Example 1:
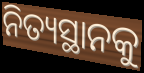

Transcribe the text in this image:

ନିତ୍ୟସ୍ଥାନକୁ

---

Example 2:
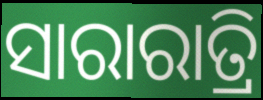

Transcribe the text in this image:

ସାରାରାତ୍ରି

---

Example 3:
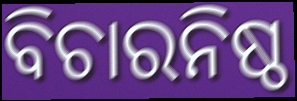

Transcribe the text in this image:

ବିଚାରନିଷ୍ଠ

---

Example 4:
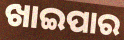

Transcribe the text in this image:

ଖାଇପାର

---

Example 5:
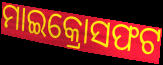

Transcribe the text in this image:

ମାଇକ୍ରୋସଫଟ